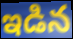
ఇడిన